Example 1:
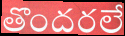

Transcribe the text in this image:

తొందరలే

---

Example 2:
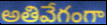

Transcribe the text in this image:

అతివేగంగా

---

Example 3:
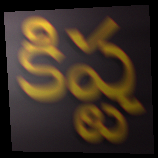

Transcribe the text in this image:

కిష్ట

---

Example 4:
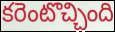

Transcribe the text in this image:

కరెంటొచ్చింది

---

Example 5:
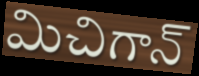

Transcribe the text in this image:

మిచిగాన్